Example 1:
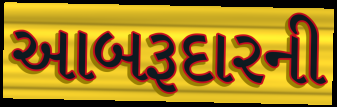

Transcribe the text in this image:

આબરૂદારની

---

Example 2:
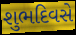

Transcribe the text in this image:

શુભદિવસે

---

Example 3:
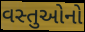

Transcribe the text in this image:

વસ્તુઓનો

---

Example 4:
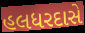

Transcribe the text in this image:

હલધરદાસે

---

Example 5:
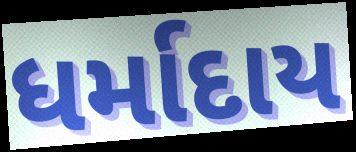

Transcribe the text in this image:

ધર્માદાય